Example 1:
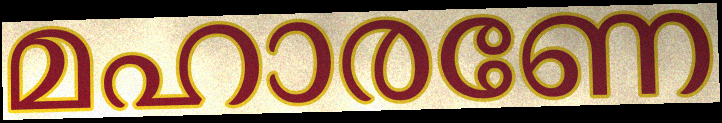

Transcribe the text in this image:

മഹാരണേ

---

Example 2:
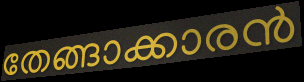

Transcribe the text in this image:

തേങ്ങാക്കാരൻ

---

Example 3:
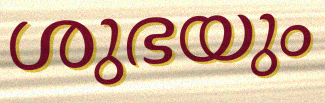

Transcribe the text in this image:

ശുഭയും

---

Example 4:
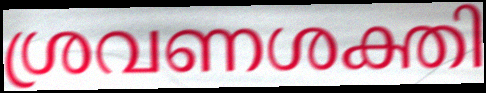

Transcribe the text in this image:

ശ്രവണശക്തി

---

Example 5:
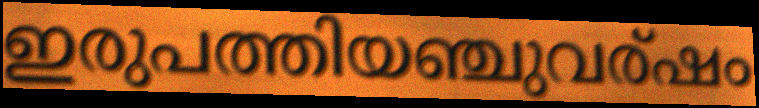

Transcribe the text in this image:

ഇരുപത്തിയഞ്ചുവര്ഷം